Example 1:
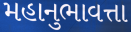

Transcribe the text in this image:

મહાનુભાવત્તા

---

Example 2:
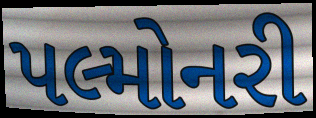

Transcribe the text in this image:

પલ્મોનરી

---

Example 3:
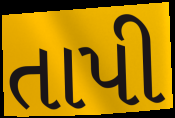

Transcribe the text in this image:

તાપી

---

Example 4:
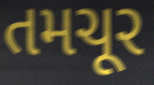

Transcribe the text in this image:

તમચૂર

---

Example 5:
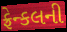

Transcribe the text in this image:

ફ્રેન્કલની